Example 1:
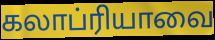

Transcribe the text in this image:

கலாப்ரியாவை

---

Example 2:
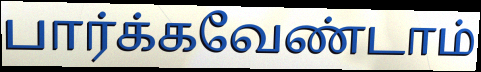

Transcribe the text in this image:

பார்க்கவேண்டாம்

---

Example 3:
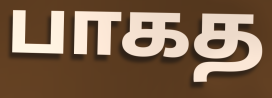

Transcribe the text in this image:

பாகத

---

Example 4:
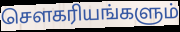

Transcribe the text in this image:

சௌகரியங்களும்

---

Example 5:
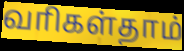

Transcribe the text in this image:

வரிகள்தாம்